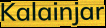
Kalainjar